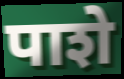
पाशे